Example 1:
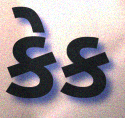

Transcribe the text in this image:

કેક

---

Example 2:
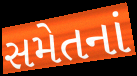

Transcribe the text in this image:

સમેતનાં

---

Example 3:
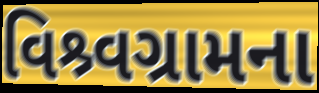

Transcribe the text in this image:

વિશ્ર્વગ્રામના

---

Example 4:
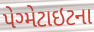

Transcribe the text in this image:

પેગ્મેટાઇટના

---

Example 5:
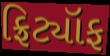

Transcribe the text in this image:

ફ્રિટ્યૉફ